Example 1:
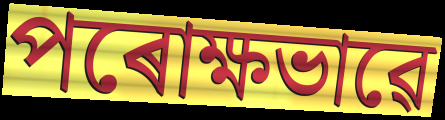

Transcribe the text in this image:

পৰোক্ষভাৱে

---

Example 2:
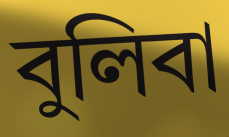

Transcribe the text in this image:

বুলিবা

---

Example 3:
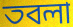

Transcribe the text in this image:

তবলা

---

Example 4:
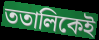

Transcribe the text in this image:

ততালিকেই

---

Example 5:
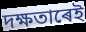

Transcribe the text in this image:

দক্ষতাৰেই